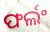
ଫର୍ଲଂ